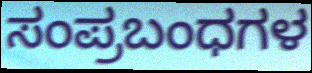
ಸಂಪ್ರಬಂಧಗಳ